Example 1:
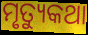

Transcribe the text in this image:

ମୃତ୍ୟୁକଥା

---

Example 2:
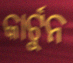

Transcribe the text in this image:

କାର୍ଟୁନ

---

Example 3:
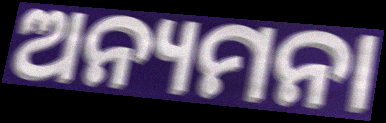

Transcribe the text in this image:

ଅନ୍ୟମନା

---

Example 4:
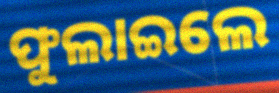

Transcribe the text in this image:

ଫୁଲାଇଲେ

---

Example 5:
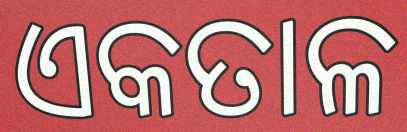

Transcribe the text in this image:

ଏକତାଳ